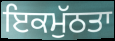
ਇਕਮੁੱਠਤਾ